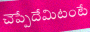
చెప్పేదేమిటంటే